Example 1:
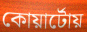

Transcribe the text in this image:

কোয়ার্টোয়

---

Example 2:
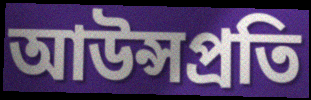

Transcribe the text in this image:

আউন্সপ্রতি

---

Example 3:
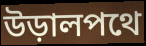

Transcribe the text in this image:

উড়ালপথে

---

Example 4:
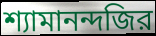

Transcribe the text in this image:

শ্যামানন্দজির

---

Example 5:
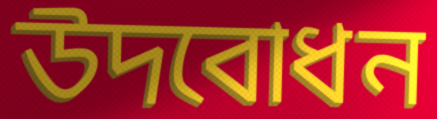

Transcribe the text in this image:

উদবোধন